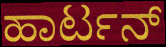
ಹಾರ್ಟನ್